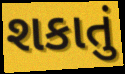
શકાતું